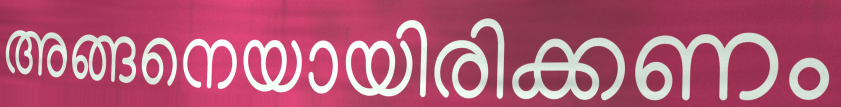
അങ്ങനെയായിരിക്കണം